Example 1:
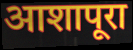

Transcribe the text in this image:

आशापूरा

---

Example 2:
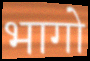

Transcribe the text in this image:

भागो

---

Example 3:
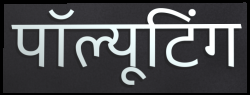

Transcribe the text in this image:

पॉल्यूटिंग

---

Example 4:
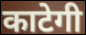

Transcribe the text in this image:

काटेगी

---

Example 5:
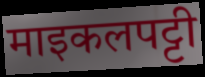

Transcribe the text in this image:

माइकलपट्टी